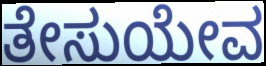
ತೇಸುಯೇವ